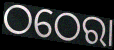
ଠଠେରା